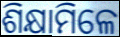
ଶିକ୍ଷାମିଳେ